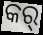
କର୍